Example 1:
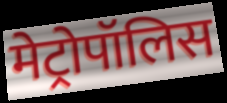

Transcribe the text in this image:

मेट्रोपॉलिस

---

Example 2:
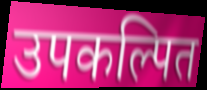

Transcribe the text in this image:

उपकल्पित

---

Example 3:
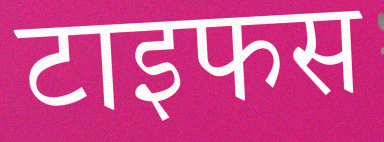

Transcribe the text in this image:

टाइफस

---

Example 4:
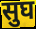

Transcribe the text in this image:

सुघ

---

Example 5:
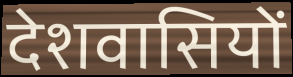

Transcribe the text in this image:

देशवासियों